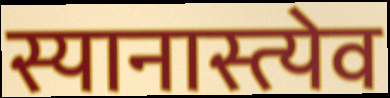
स्यानास्त्येव